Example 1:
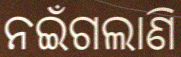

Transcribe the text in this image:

ନଇଁଗଲାଣି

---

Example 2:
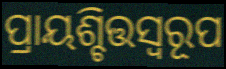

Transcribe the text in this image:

ପ୍ରାୟଶ୍ଚିତ୍ତସ୍ୱରୂପ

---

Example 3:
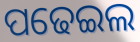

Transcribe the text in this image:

ପଢେଇଲ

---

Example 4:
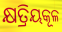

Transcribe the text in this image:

କ୍ଷତ୍ରିୟକୂଳ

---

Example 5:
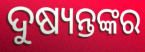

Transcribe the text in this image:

ଦୁଷ୍ୟନ୍ତଙ୍କର